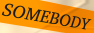
SOMEBODY